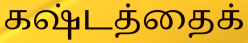
கஷ்டத்தைக்